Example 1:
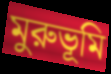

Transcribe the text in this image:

মুরুভূমি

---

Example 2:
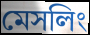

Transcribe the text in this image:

মেসলিং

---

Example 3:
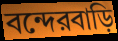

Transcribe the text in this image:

বন্দেরবাড়ি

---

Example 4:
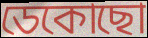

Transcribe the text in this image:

ডেকোছো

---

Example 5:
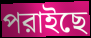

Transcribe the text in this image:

পরাইছে